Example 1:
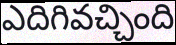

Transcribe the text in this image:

ఎదిగివచ్చింది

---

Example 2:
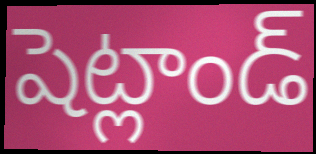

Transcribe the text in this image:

షెట్లాండ్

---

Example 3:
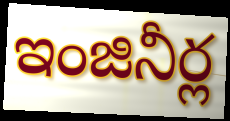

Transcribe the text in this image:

ఇంజినీర్ల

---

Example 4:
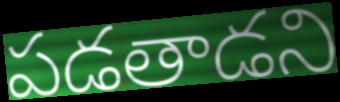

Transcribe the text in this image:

పడతాడని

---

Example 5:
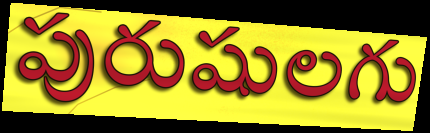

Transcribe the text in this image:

పురుషులగు